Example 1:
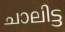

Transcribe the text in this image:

ചാലിട്ട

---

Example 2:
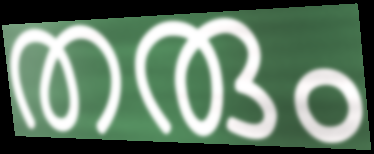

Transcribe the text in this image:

തരും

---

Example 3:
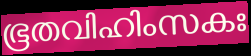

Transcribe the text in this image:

ഭൂതവിഹിംസകഃ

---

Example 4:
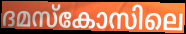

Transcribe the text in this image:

ദമസ്കോസിലെ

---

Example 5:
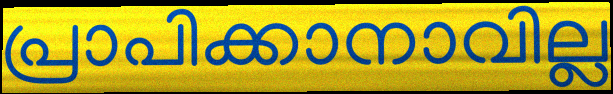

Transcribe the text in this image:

പ്രാപിക്കാനാവില്ല